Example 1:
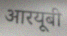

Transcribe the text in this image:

आरयूबी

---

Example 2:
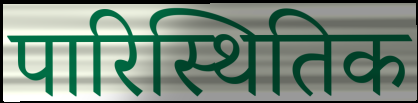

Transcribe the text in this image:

पारिस्थितिक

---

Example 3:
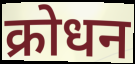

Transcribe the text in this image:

क्रोधन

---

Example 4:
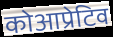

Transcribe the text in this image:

कोआप्रेटिव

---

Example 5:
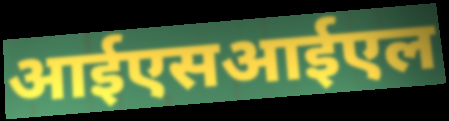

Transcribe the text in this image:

आईएसआईएल